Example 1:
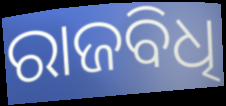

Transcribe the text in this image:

ରାଜବିଧି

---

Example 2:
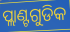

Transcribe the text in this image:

ପ୍ଲାଣ୍ଟଗୁଡିକ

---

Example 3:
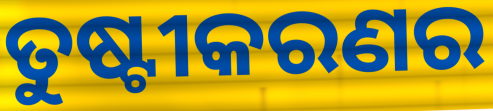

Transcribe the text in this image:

ତୁଷ୍ଟୀକରଣର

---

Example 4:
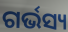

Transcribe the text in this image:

ଗର୍ଭସ୍ୟ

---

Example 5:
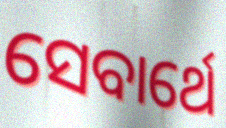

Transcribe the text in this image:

ସେବାର୍ଥେ